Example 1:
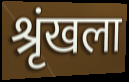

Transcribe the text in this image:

श्रृंखला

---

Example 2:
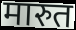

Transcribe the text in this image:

मारुत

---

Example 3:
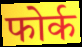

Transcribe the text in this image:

फोर्क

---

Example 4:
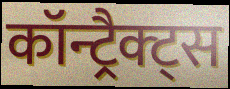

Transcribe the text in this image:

कॉन्‍ट्रैक्‍ट्स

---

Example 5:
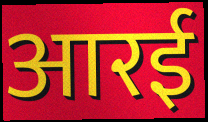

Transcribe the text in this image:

आरई